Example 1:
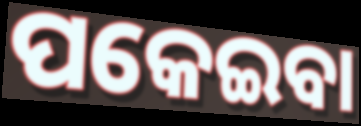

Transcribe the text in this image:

ପକେଇବା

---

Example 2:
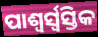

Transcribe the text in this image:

ପାଶ୍ୱର୍ସ୍ୱସ୍ତିକ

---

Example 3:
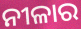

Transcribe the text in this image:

ନୀଳାର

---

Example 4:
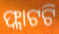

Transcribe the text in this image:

ଫ୍ଲାଟଟି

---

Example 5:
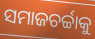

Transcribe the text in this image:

ସମାଜଚର୍ଚ୍ଚାକୁ